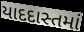
યાદદાસ્તમાં